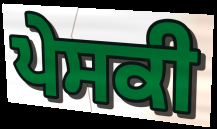
ਪੇਸਕੀ